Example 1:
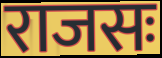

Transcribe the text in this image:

राजसः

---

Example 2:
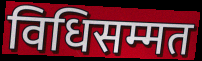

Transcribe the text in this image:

विधिसम्मत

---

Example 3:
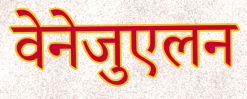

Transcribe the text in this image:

वेनेजुएलन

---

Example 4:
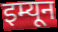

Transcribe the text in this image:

इम्‍यून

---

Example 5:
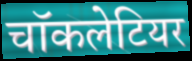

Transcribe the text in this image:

चॉकलेटियर